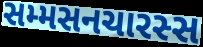
સમ્મસનચારસ્સ